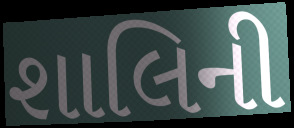
શાલિની